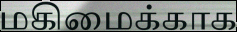
மகிமைக்காக